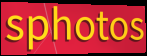
sphotos